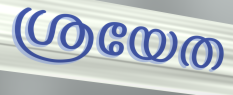
ശ്രയേത